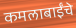
कमलाबाईंचे